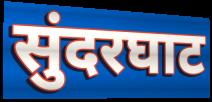
सुंदरघाट